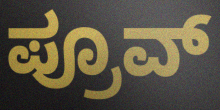
ಪ್ರೂವ್